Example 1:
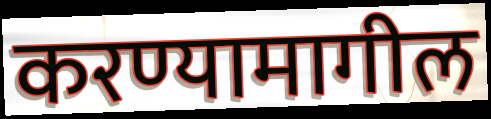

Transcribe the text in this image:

करण्यामागील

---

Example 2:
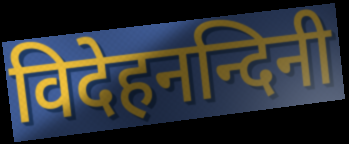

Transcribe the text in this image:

विदेहनन्दिनी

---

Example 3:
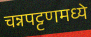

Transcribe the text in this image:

चन्नपट्टणमध्ये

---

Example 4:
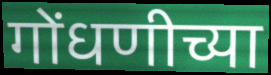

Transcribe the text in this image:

गोंधणीच्या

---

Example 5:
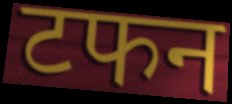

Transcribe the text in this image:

टफन